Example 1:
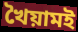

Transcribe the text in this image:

খৈয়ামই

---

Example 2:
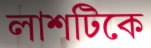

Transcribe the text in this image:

লাশটিকে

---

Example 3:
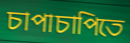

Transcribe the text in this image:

চাপাচাপিতে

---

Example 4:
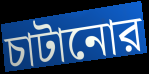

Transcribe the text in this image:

চাটানোর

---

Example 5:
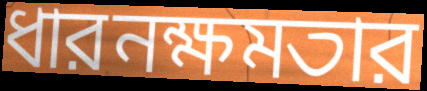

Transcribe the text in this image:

ধারনক্ষমতার